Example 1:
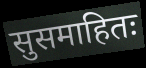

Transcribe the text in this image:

सुसमाहितः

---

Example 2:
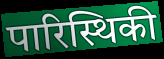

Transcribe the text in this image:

पारिस्थिकी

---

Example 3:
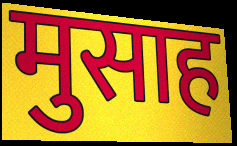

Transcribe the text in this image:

मुसाह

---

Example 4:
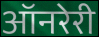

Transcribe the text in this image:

ऑनरेरी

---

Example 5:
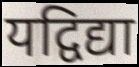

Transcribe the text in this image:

यद्विद्या